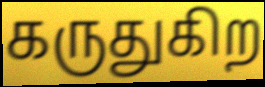
கருதுகிற